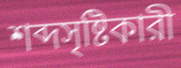
শব্দসৃষ্টিকারী